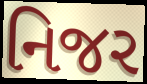
નિજર